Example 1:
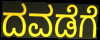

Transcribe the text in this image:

ದವಡೆಗೆ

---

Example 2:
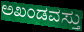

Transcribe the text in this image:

ಅಖಂಡವಸ್ತು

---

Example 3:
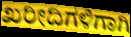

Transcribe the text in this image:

ಖರೀದಿಗಳಿಗಾಗಿ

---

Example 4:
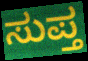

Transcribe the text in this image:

ಸುಪ್ತ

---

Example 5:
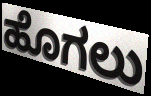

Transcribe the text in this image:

ಹೊಗಲು